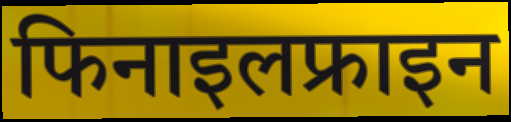
फिनाइलफ्राइन